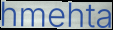
hmehta